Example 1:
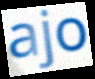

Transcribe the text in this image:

ajo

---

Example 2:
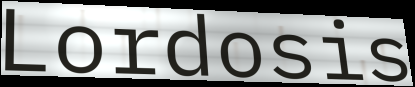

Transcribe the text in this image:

Lordosis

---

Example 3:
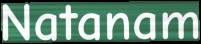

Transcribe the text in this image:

Natanam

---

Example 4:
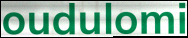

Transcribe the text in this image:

oudulomi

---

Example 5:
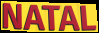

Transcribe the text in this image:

NATAL